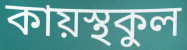
কায়স্থকুল